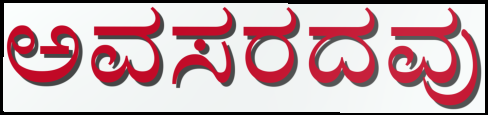
ಅವಸರದವು